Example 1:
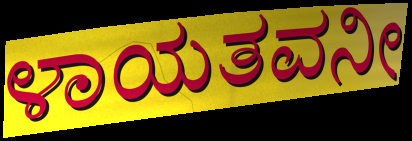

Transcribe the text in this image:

ಳಾಯತವನೀ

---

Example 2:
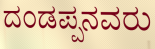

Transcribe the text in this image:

ದಂಡಪ್ಪನವರು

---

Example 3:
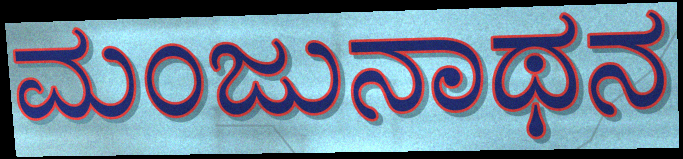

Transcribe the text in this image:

ಮಂಜುನಾಥನ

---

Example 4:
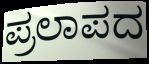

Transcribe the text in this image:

ಪ್ರಲಾಪದ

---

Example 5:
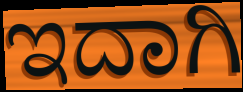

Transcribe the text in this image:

ಇದಾಗಿ